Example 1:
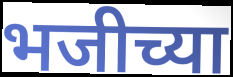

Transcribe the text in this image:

भजीच्या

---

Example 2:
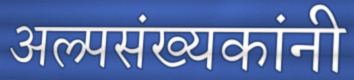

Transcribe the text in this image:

अल्पसंख्यकांनी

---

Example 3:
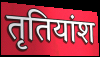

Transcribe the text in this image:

तृतियांश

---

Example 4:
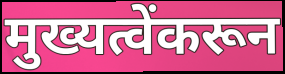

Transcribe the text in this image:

मुख्यत्वेंकरून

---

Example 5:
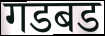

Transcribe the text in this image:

गडबड